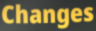
Changes